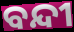
ବନ୍ଦୀ